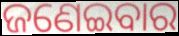
ଜଣେଇବାର